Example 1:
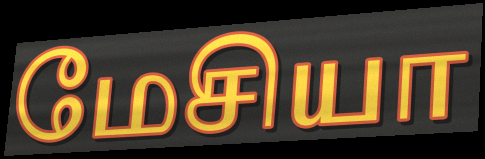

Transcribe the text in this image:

மேசியா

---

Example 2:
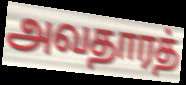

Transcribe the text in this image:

அவதாரத்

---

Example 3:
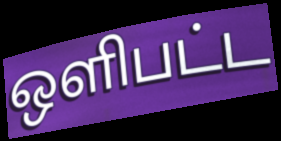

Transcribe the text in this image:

ஒளிபட்ட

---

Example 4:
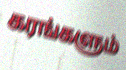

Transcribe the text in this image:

கரங்களும்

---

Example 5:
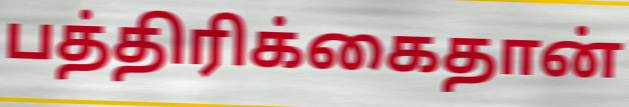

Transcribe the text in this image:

பத்திரிக்கைதான்